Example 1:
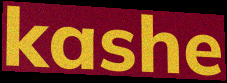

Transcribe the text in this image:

kashe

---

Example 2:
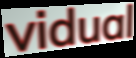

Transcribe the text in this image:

vidual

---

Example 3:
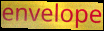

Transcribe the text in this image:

envelope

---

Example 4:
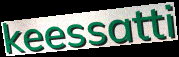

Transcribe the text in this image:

keessatti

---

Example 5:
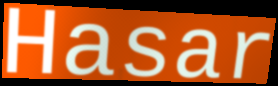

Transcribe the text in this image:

Hasar